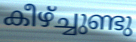
കീഴ്ച്ചുണ്ടു